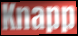
Knapp